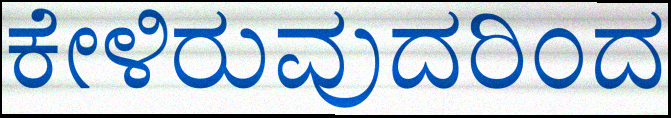
ಕೇಳಿರುವುದರಿಂದ